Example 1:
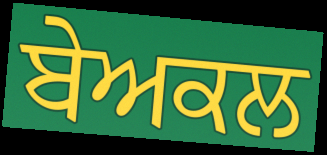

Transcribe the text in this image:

ਬੇਅਕਲ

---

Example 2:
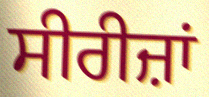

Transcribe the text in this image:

ਸੀਰੀਜ਼ਾਂ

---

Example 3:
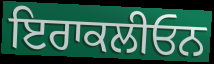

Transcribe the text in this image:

ਇਰਾਕਲੀਓਨ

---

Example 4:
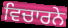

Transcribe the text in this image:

ਵਿਚਾਰਨੇ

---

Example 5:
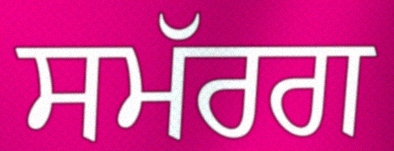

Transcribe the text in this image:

ਸਮੱਰਗ